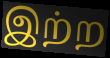
இற்ற